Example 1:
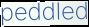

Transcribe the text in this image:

peddled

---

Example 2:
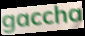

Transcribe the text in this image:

gaccha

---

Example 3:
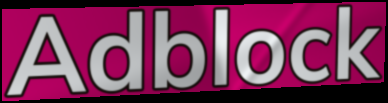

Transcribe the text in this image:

Adblock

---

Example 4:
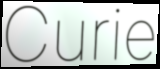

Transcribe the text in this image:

Curie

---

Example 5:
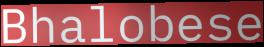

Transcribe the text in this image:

Bhalobese